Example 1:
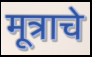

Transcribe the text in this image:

मूत्राचे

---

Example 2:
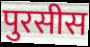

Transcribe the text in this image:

पुरसीस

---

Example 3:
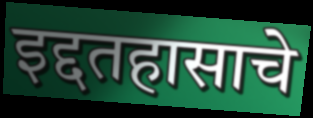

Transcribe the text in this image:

इद्दतहासाचे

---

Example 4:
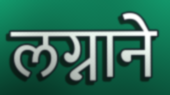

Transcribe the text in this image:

लग्नाने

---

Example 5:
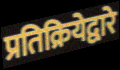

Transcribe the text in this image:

प्रतिक्रियेद्वारे